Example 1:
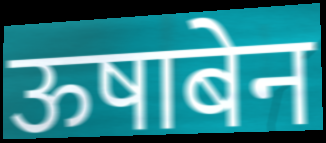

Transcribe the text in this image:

ऊषाबेन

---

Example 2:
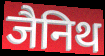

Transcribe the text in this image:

जैनिथ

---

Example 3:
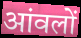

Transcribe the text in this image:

आंवलों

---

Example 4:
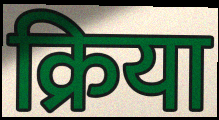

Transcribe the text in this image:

क्रिया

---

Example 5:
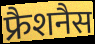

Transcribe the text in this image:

फ्रैशनैस